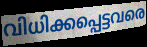
വിധിക്കപ്പെട്ടവരെ